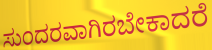
ಸುಂದರವಾಗಿರಬೇಕಾದರೆ